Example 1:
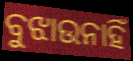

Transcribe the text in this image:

ବୁଝାଉନାହିଁ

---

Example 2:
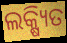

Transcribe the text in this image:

ଲକ୍ଷ୍ୟିତ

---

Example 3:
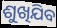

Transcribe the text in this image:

ଶୁଖିଯିବ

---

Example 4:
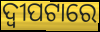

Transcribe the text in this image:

ଦ୍ୱୀପଟାରେ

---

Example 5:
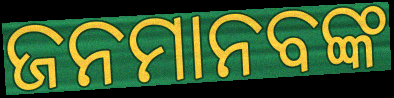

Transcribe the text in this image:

ଜନମାନବଙ୍କ